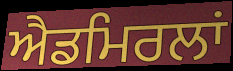
ਐਡਮਿਰਲਾਂ